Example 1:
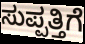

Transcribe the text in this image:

ಸುಪ್ಪತ್ತಿಗೆ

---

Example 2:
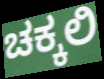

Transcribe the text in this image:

ಚಕ್ಕಲಿ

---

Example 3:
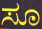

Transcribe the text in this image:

ಸೂ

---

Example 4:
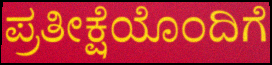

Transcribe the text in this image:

ಪ್ರತೀಕ್ಷೆಯೊಂದಿಗೆ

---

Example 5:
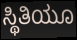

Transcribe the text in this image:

ಸ್ಥಿತಿಯೂ